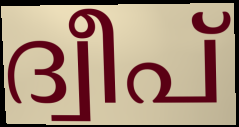
ദ്വീപ്